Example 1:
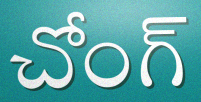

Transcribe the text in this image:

చోంగ్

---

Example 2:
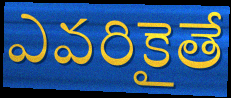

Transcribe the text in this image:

ఎవరికైతే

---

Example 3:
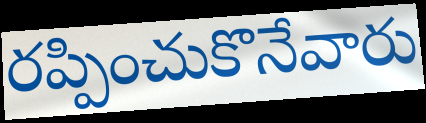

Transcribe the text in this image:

రప్పించుకొనేవారు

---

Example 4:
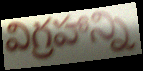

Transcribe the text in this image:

విగ్రహాన్ని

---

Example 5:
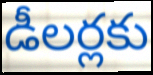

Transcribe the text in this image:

డీలర్లకు